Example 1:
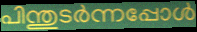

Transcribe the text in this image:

പിന്തുടർന്നപ്പോൾ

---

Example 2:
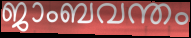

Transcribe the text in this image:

ജാംബവന്തം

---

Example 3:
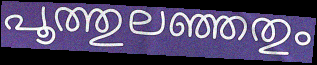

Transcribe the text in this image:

പൂത്തുലഞ്ഞതും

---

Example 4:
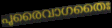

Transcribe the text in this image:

പുരൈവാഗതൈഃ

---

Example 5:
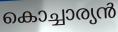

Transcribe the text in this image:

കൊച്ചാര്യൻ